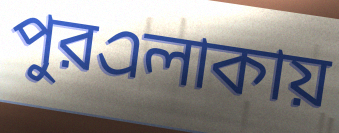
পুরএলাকায়